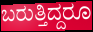
ಬರುತ್ತಿದ್ದರೂ